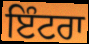
ਇੰਟਰਾ